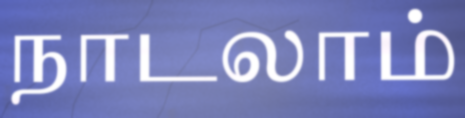
நாடலாம்